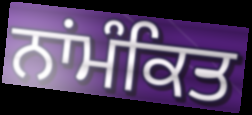
ਨਾਂਮੰਕਿਤ